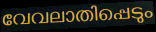
വേവലാതിപ്പെടും